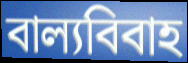
বাল্যবিবাহ